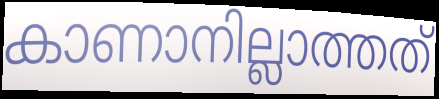
കാണാനില്ലാത്തത്